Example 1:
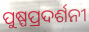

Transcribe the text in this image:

ପୁଷ୍ପପ୍ରଦର୍ଶନୀ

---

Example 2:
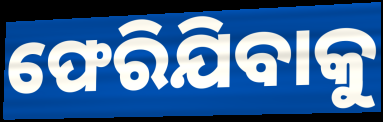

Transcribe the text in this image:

ଫେରିଯିବାକୁ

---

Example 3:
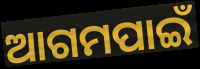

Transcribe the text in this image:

ଆଗମପାଇଁ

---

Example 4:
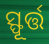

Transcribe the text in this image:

ସ୍ଫୂର୍ତ୍ତ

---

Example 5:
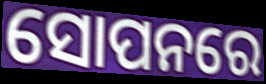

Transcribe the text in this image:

ସୋପନରେ